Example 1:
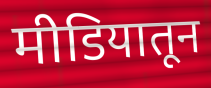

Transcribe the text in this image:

मीडियातून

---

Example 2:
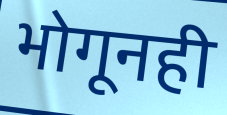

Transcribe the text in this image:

भोगूनही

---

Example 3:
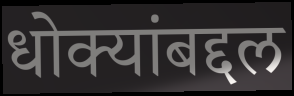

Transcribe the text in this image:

धोक्यांबद्दल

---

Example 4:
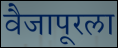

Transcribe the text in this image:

वैजापूरला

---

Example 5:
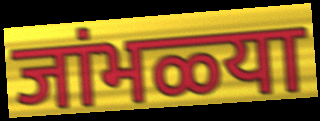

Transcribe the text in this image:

जांभळ्या